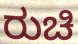
ರುಚಿ